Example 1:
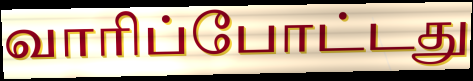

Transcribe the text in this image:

வாரிப்போட்டது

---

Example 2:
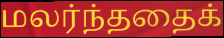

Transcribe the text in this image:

மலர்ந்ததைக்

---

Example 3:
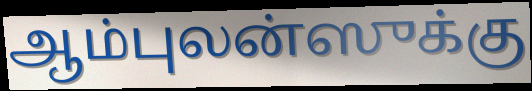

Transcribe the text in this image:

ஆம்புலன்ஸுக்கு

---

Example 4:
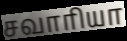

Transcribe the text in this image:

சவாரியா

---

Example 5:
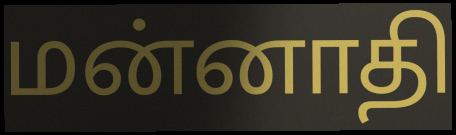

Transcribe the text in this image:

மன்னாதி